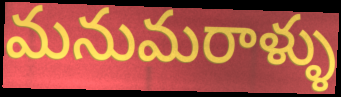
మనుమరాళ్ళు